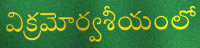
విక్రమోర్వశీయంలో